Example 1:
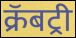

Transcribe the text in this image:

क्रॅबट्री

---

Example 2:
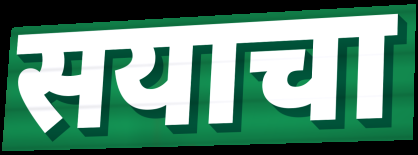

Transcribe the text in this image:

सयाचा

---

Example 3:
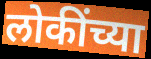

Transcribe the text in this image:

लोकींच्या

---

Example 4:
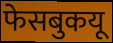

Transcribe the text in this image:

फेसबुकयू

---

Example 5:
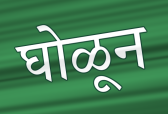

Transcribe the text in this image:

घोळून